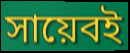
সায়েবই